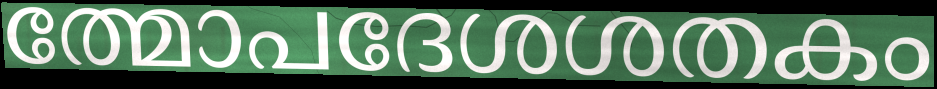
ത്മോപദേശശതകം